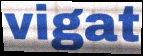
vigat